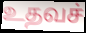
உதவச்